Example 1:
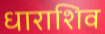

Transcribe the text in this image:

धाराशिव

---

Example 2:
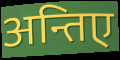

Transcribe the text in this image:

अन्तिए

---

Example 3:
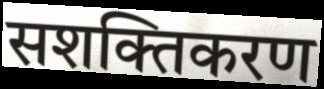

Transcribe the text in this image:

सशक्तिकरण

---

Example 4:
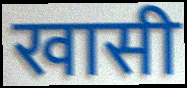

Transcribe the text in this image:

खासी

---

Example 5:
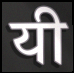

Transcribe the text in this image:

यी